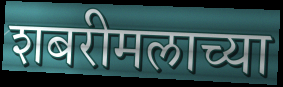
शबरीमलाच्या